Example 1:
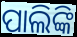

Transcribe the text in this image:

ପାଲିଙ୍କି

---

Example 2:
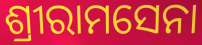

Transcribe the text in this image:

ଶ୍ରୀରାମସେନା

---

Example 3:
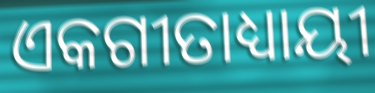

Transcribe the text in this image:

ଏକଗୀତାଧ୍ୟାୟୀ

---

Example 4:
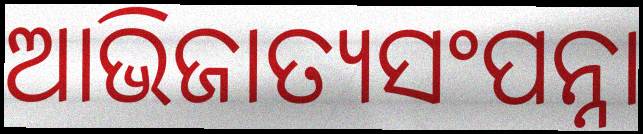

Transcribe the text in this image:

ଆଭିଜାତ୍ୟସଂପନ୍ନା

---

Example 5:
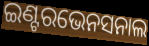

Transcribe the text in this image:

ଇଣ୍ଟରଭେନସନାଲ